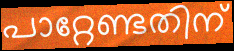
പാറ്റേണ്ടതിന്